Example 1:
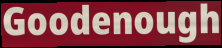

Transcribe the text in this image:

Goodenough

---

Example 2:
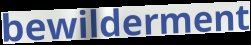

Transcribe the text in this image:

bewilderment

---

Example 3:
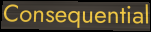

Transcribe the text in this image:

Consequential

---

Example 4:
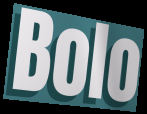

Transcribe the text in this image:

Bolo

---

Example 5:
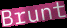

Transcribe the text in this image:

Brunt